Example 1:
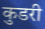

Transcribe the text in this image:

कुडरी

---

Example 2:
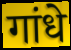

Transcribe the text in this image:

गांधे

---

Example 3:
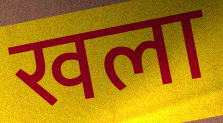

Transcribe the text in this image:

खला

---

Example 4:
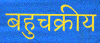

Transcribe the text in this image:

बहुचक्रीय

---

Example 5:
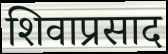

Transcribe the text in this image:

शिवाप्रसाद